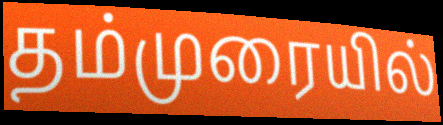
தம்முரையில்